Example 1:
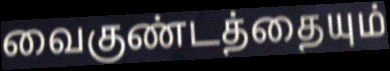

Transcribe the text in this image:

வைகுண்டத்தையும்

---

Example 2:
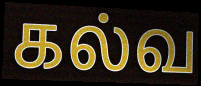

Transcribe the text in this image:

கல்வ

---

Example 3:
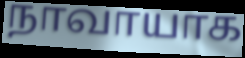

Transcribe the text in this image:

நாவாயாக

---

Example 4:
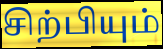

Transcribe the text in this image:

சிற்பியும்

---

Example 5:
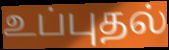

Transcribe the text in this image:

உப்புதல்